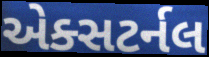
એક્સટર્નલ